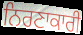
ਨਿਰਣਾਕਾਰੀ